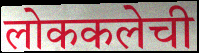
लोककलेची